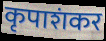
कृपाशंकर